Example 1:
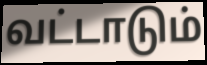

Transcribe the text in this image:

வட்டாடும்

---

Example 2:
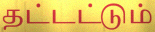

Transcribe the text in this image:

தட்டட்டும்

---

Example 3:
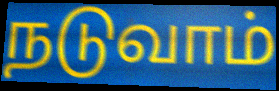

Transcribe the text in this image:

நடுவாம்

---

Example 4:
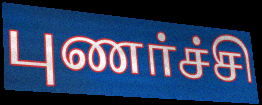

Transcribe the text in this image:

புணர்ச்சி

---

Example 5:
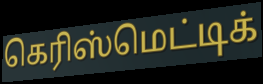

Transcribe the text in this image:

கெரிஸ்மெட்டிக்